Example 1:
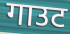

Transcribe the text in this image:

गाउट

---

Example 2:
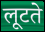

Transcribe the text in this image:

लूटते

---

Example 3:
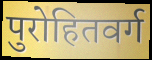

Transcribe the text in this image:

पुरोहितवर्ग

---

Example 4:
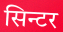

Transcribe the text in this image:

सिन्टर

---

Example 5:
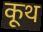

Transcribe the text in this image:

कूथ